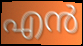
എൻ